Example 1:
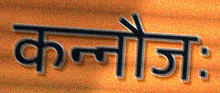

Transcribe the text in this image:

कन्नौजः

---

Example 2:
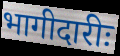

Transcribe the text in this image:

भागीदारीः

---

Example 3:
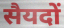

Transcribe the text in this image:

सैयदों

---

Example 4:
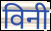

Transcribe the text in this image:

विनी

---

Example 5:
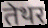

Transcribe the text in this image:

तेथर